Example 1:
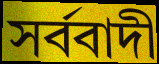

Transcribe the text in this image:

সর্ববাদী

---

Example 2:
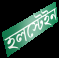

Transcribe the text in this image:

হলস্টেইন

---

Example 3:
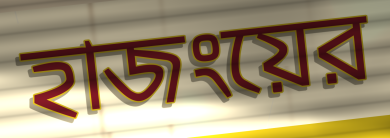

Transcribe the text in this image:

হাজংয়ের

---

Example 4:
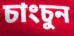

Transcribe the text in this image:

চাংচুন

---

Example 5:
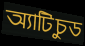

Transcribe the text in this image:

অ্যাটিচুড